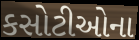
કસોટીઓના